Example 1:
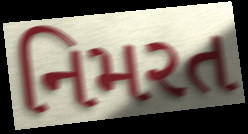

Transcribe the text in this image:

નિમરત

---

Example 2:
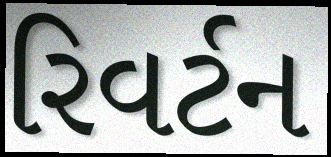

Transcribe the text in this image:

રિવર્ટન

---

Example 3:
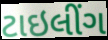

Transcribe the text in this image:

ટાઇલીંગ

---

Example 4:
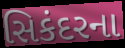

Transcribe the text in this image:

સિકંદરના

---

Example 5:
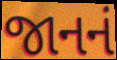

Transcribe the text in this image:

જાનનં